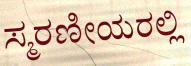
ಸ್ಮರಣೀಯರಲ್ಲಿ